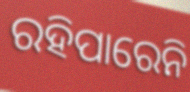
ରହିପାରେନି